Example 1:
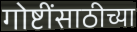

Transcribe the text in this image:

गोष्टींसाठीच्या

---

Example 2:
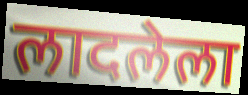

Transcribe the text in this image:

लादलेला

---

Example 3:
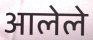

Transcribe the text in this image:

आलेले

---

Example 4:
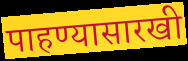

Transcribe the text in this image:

पाहण्यासारखी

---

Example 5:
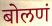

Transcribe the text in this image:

बोलणं